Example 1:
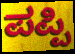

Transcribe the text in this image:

ಪಪ್ಪಿ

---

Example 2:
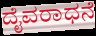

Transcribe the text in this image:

ದೈವರಾಧನೆ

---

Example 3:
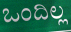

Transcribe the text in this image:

ಒಂದಿಲ್ಲ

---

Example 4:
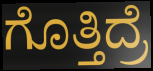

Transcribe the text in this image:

ಗೊತ್ತಿದ್ರೆ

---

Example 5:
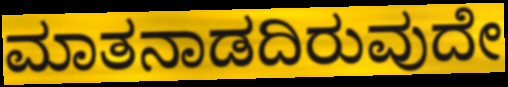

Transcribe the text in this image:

ಮಾತನಾಡದಿರುವುದೇ